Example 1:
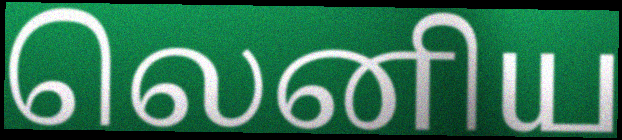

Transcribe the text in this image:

லெனிய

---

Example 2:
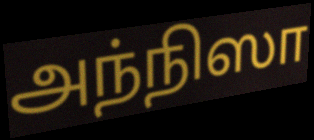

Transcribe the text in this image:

அந்நிஸா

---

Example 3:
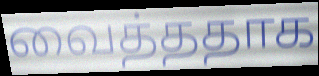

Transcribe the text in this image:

வைத்ததாக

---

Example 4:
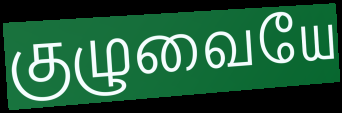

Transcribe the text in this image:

குழுவையே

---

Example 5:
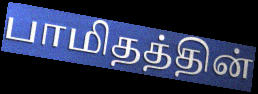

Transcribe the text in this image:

பாமிதத்தின்